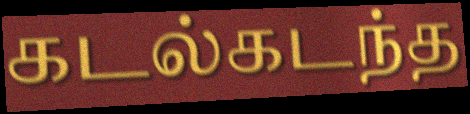
கடல்கடந்த